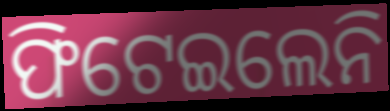
ଫିଟେଇଲେନି